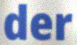
der